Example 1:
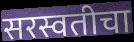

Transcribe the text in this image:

सरस्वतीचा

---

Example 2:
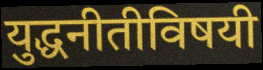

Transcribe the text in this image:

युद्धनीतीविषयी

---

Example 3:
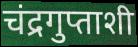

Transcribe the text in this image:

चंद्रगुप्ताशी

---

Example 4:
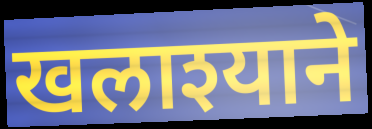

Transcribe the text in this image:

खलाश्याने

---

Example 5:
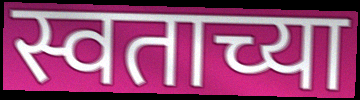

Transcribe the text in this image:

स्वताच्या